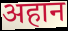
अहान